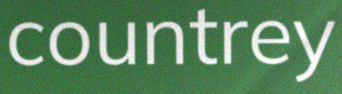
countrey